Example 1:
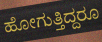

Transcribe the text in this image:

ಹೋಗುತ್ತಿದ್ದರೂ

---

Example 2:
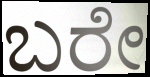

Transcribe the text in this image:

ಬರೇ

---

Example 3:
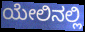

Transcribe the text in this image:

ಯೇಲಿನಲ್ಲಿ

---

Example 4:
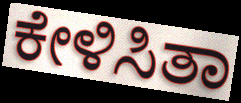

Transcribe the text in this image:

ಕೇಳಿಸಿತಾ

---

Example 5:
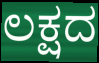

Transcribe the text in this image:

ಲಕ್ಷದ